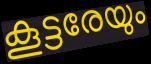
കൂട്ടരേയും